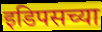
इडिपसच्या